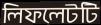
লিফলেটটি